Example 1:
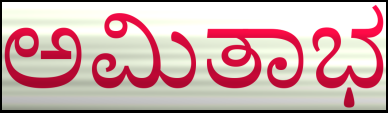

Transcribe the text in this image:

ಅಮಿತಾಭ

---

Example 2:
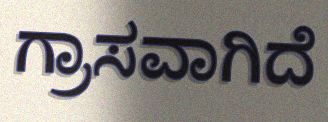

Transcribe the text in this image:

ಗ್ರಾಸವಾಗಿದೆ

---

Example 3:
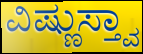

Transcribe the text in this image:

ವಿಷ್ಣುಸ್ತ್ವಾ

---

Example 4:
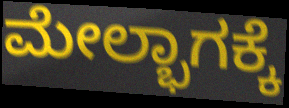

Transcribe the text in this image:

ಮೇಲ್ಭಾಗಕ್ಕೆ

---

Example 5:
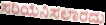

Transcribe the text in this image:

ಸರಿಯೆನಿಸಲಾರದು